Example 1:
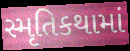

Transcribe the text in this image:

સ્મૃતિકથામાં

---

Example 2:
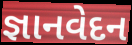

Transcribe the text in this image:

જ્ઞાનવેદન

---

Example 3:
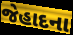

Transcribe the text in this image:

જેહાદના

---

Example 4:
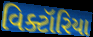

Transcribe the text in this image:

વિક્ટૉરિયા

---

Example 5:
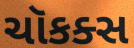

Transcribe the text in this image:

ચૉકક્સ